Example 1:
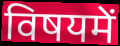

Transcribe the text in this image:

विषयमें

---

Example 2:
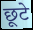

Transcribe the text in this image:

छूटे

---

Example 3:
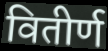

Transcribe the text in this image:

वितीर्ण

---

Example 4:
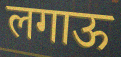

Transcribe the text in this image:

लगाऊ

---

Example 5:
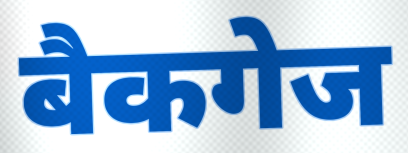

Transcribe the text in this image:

बैकगेज